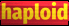
haploid